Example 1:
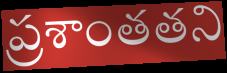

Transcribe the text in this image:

ప్రశాంతతని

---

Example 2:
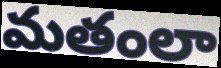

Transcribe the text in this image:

మతంలా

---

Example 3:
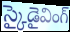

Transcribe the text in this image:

స్కైడైవింగ్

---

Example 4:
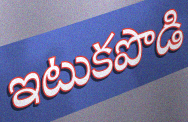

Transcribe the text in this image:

ఇటుకపొడి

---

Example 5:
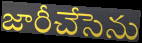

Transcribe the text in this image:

జారీచేసెను